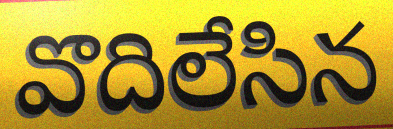
వొదిలేసిన